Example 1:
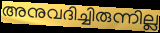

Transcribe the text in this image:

അനുവദിച്ചിരുന്നില്ല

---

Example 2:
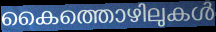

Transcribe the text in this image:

കൈത്തൊഴിലുകൾ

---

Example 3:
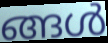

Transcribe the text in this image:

ങ്ങൾ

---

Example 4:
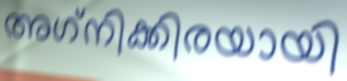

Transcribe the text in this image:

അഗ്‌നിക്കിരയായി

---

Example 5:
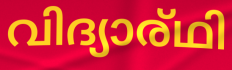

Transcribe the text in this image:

വിദ്യാര്ഥി